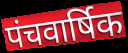
पंचवार्षिक